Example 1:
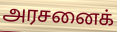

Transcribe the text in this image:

அரசனைக்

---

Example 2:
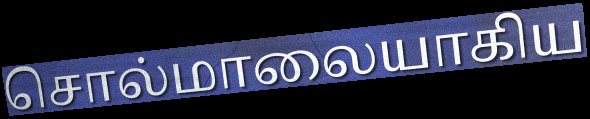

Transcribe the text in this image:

சொல்மாலையாகிய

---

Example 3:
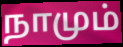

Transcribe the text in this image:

நாமும்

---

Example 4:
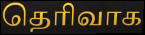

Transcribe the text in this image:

தெரிவாக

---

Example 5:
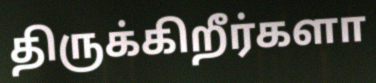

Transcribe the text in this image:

திருக்கிறீர்களா